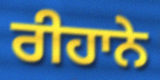
ਰੀਹਾਨੇ